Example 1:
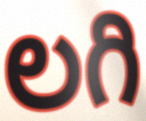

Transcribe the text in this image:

లగి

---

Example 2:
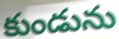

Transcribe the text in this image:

కుండును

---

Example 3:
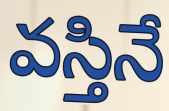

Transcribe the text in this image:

వస్తినే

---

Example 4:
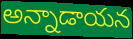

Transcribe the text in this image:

అన్నాడాయన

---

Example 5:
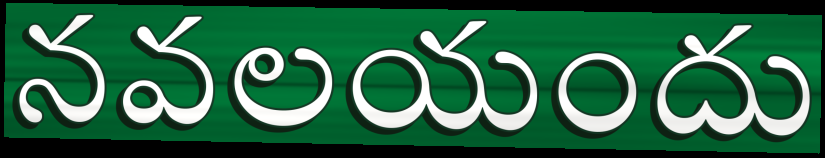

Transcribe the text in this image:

నవలయందు